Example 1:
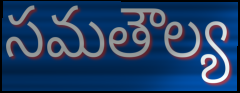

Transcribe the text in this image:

సమతౌల్య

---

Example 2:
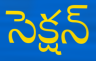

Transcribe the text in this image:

సెక్షన్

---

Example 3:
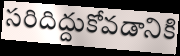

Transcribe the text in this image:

సరిదిద్దుకోవడానికి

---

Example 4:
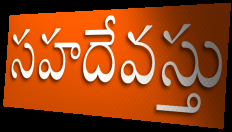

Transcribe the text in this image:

సహదేవస్తు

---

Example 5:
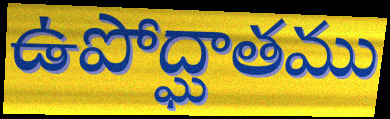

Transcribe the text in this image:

ఉపోద్ఘాతము